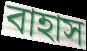
বাহাস